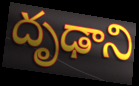
దృఢాని